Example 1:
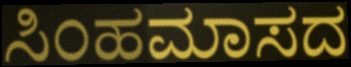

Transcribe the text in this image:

ಸಿಂಹಮಾಸದ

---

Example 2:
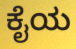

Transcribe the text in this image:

ಕೈಯ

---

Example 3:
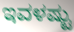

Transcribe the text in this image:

ಇವಳಷ್ಟು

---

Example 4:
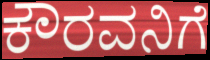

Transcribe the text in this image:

ಕೌರವನಿಗೆ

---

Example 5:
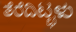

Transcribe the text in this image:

ತೆರೆದಿಟ್ಟಳು